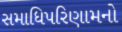
સમાધિપરિણામનો